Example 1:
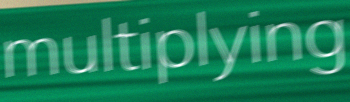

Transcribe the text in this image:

multiplying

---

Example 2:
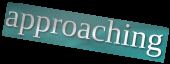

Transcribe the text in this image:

approaching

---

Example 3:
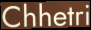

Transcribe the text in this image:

Chhetri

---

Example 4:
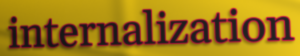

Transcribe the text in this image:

internalization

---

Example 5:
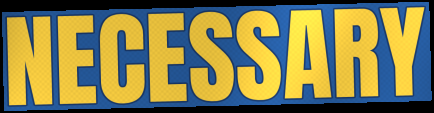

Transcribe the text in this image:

NECESSARY